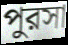
পুরসা